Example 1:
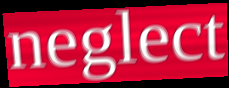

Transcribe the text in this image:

neglect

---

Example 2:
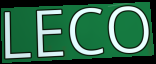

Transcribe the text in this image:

LECO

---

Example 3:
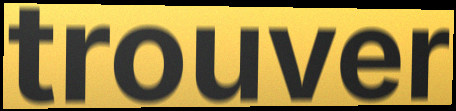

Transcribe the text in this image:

trouver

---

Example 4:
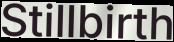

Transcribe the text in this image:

Stillbirth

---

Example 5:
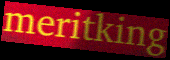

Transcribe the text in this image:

meritking